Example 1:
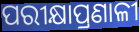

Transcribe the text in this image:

ପରୀକ୍ଷାପ୍ରଣାଳୀ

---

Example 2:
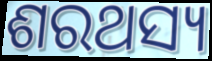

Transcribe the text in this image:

ଶରଥସ୍ୟ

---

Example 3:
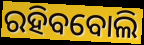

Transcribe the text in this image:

ରହିବବୋଲି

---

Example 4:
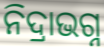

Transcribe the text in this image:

ନିଦ୍ରାଭଗ୍ନ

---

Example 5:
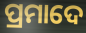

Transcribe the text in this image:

ପ୍ରମାଦେ